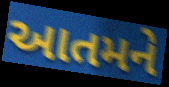
આતમને